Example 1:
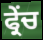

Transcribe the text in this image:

ਫ੍ਰੇਂਚ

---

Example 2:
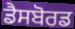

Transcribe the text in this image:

ਡੈਸਬੋਰਡ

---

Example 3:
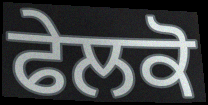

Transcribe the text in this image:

ਫੇਲਕੋ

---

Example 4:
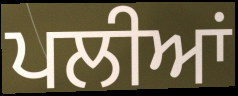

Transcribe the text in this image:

ਪਲੀਆਂ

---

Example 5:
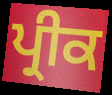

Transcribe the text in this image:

ਪ੍ਰੀਕ